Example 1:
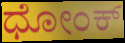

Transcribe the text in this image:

ಧೋಂಕ್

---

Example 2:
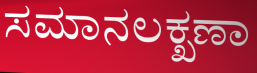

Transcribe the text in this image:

ಸಮಾನಲಕ್ಖಣಾ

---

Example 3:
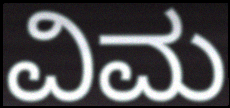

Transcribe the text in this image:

ವಿಮ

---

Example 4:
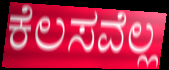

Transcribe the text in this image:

ಕೆಲಸವೆಲ್ಲ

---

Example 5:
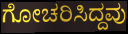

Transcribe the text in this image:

ಗೋಚರಿಸಿದ್ದವು